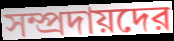
সম্প্রদায়দের